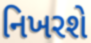
નિખરશે